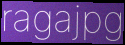
ragajpg